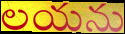
లయను